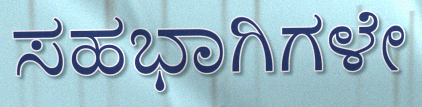
ಸಹಭಾಗಿಗಳೇ